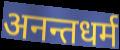
अनन्तधर्म